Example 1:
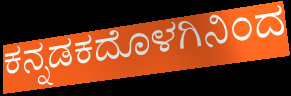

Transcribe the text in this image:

ಕನ್ನಡಕದೊಳಗಿನಿಂದ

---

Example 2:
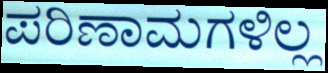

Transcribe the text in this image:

ಪರಿಣಾಮಗಳಿಲ್ಲ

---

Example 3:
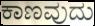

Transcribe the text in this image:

ಕಾಣವುದು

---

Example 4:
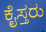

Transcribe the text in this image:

ಕೈಸ್ತರು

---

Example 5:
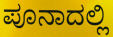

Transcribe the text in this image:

ಪೂನಾದಲ್ಲಿ